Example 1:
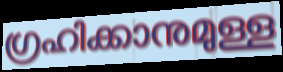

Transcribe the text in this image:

ഗ്രഹിക്കാനുമുള്ള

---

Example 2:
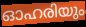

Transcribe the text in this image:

ഓഹരിയും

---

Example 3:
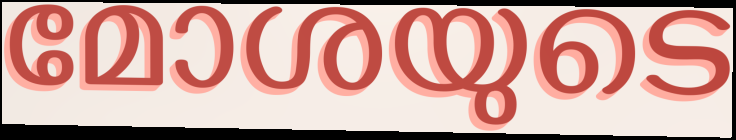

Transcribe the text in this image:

മോശയുടെ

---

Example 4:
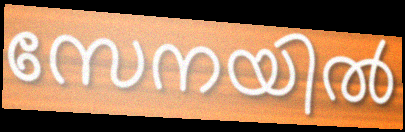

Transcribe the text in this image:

സേനയിൽ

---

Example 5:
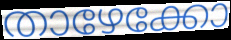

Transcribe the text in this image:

താഴേക്കോ